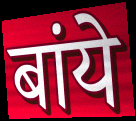
बांये